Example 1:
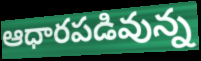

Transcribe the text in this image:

ఆధారపడివున్న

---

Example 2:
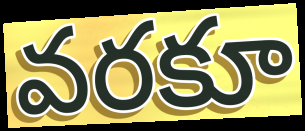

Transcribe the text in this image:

వరకూ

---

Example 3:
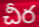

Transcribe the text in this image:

చీర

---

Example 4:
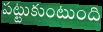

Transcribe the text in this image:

పట్టుకుంటుంది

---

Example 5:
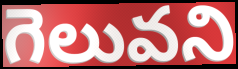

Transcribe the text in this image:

గెలువని